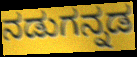
ನಡುಗನ್ನಡ